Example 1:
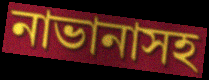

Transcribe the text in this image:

নাভানাসহ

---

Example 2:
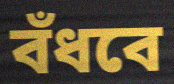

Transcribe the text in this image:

বঁধবে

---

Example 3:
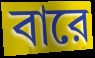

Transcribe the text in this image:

বারে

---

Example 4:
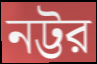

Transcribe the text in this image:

নট্টর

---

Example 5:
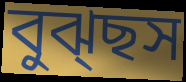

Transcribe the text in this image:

বুঝ্ছস